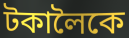
টকালৈকে